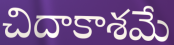
చిదాకాశమే